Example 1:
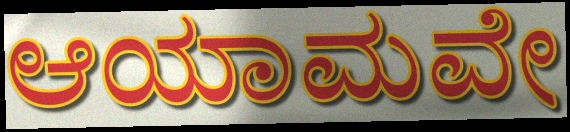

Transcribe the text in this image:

ಆಯಾಮವೇ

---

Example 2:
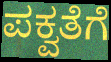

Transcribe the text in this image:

ಪಕ್ವತೆಗೆ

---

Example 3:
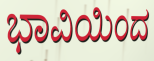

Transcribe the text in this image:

ಭಾವಿಯಿಂದ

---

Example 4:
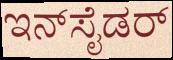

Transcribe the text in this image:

ಇನ್‌ಸೈಡರ್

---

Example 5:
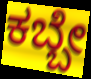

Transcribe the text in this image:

ಕಬ್ಬೇ